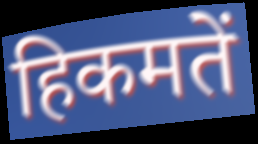
हिकमतें